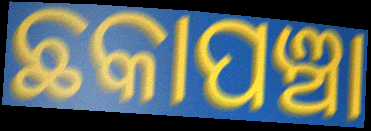
ଛକାପଞ୍ଚା